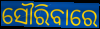
ସୌରିବାରେ